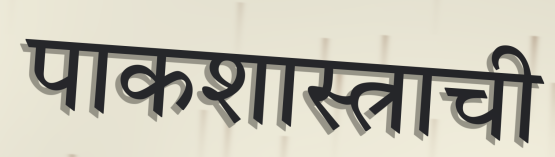
पाकशास्त्राची